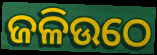
ଜଳିଉଠେ